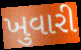
ખુવારી